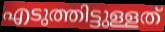
എടുത്തിട്ടുള്ളത്